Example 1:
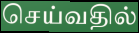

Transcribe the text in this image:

செய்வதில்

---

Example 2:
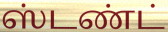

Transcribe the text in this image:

ஸ்டண்ட்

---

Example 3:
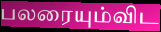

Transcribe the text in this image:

பலரையும்விட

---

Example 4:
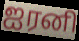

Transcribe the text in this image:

ஐரனி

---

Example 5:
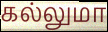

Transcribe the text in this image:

கல்லுமா